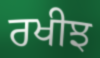
ਰਖੀਝ